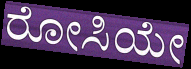
ರೋಸಿಯೇ